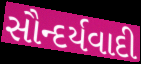
સૌન્દર્યવાદી